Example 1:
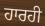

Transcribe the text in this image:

ਹਾਰਹੀ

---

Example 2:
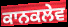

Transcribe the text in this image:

ਕਾਨਕਲੇਵ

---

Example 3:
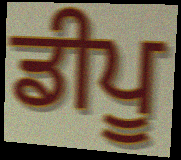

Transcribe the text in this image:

ਡੀਪੂ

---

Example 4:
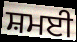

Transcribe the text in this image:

ਸ਼ਮਈ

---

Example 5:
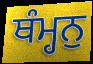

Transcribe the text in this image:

ਥੰਮ੍ਹ੍ਹਨੁ